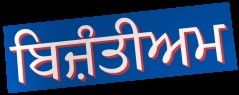
ਬਿਜ਼ੰਤੀਅਮ